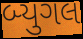
બ્યુગલ